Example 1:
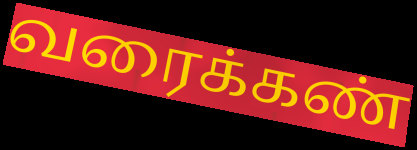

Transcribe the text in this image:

வரைக்கண்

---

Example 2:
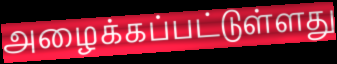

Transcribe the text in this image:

அழைக்கப்பட்டுள்ளது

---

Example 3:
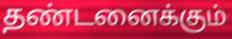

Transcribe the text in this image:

தண்டனைக்கும்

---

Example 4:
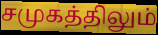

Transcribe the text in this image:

சமுகத்திலும்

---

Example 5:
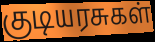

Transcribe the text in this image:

குடியரசுகள்